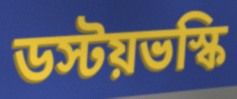
ডস্টয়ভস্কি